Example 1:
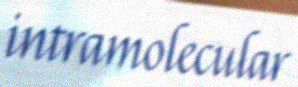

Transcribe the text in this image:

intramolecular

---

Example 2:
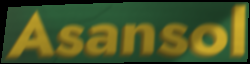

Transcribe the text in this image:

Asansol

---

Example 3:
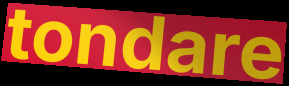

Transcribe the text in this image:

tondare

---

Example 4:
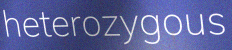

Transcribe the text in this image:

heterozygous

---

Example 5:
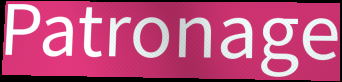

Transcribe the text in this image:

Patronage